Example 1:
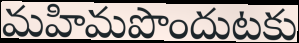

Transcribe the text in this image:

మహిమపొందుటకు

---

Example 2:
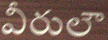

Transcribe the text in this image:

వీరులౌ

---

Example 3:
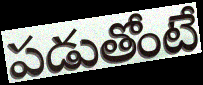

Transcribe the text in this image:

పడుతోంటే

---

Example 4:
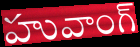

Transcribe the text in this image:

హువాంగ్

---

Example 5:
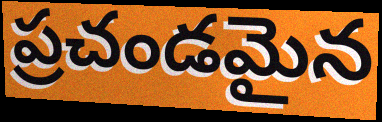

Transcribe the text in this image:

ప్రచండమైన